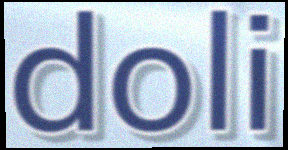
doli